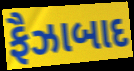
ફૈઝાબાદ